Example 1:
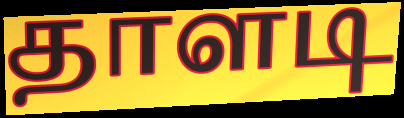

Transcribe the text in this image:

தாளடி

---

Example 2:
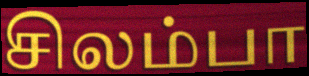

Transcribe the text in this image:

சிலம்பா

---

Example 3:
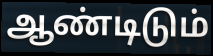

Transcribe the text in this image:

ஆண்டிடும்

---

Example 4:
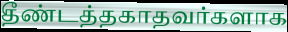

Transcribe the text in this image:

தீண்டத்தகாதவர்களாக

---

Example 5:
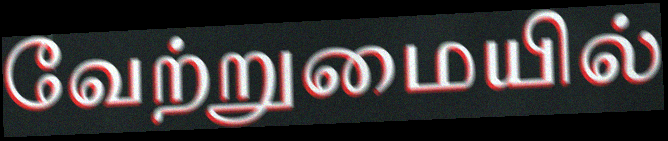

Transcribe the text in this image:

வேற்றுமையில்